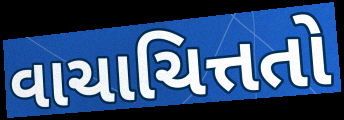
વાચાચિત્તતો